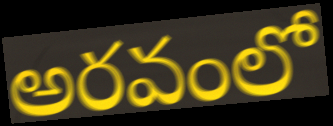
అరవంలో